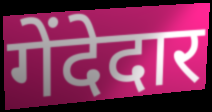
गेंदेदार